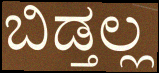
ಬಿಡ್ತಲ್ಲ